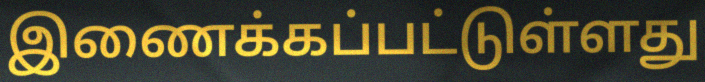
இணைக்கப்பட்டுள்ளது